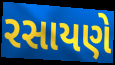
રસાયણે